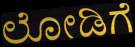
ಲೋಡಿಗೆ